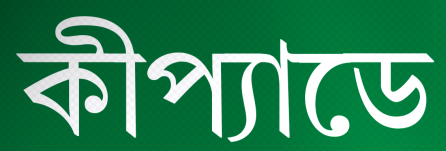
কীপ্যাডে